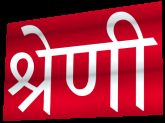
श्रेणी